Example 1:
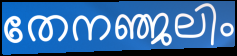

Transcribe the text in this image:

തേനഞ്ജലിം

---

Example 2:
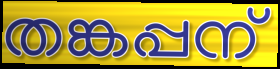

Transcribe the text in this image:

തങ്കപ്പന്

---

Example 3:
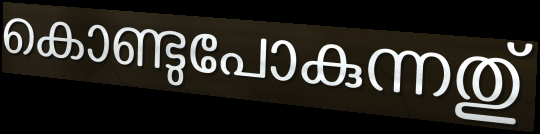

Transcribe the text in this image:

കൊണ്ടുപോകുന്നതു്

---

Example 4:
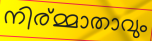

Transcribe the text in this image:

നിര്മ്മാതാവും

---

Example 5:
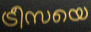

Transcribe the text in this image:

ട്രീസയെ